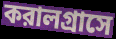
করালগ্রাসে